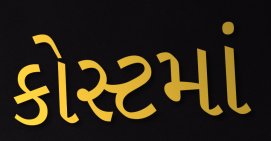
કોસ્ટમાં